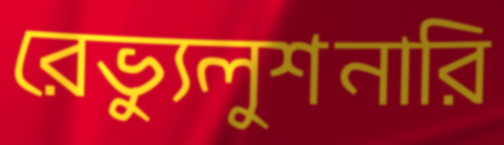
রেভ্যুলুশনারি